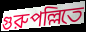
গুরুপল্লিতে